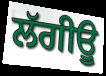
ਲੱਗੀਊ